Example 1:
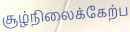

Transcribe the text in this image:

சூழ்நிலைக்கேற்ப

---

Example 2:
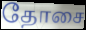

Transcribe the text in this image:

தோசை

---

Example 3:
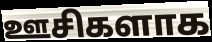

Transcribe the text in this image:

ஊசிகளாக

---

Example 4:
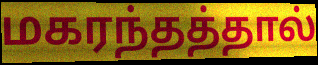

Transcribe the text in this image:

மகரந்தத்தால்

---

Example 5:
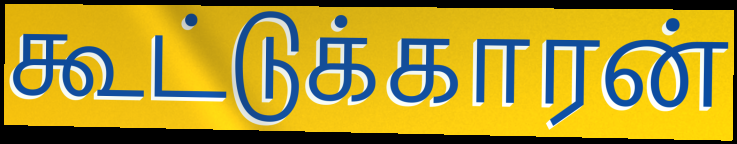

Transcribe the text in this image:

கூட்டுக்காரன்